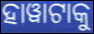
ହାୱାଟାକୁ